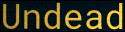
Undead